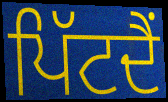
ਪਿੱਟਦੈਂ